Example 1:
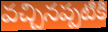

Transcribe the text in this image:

వచ్చినప్పటికి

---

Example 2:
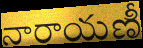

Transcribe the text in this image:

నారాయణీ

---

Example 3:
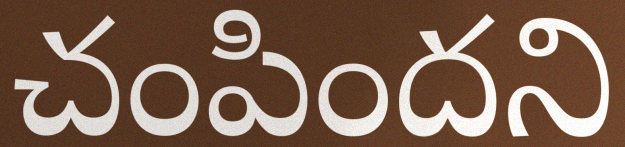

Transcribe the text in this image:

చంపిందని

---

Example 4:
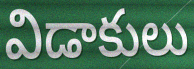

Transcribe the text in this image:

విడాకులు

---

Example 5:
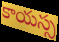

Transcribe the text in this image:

కాయస్స